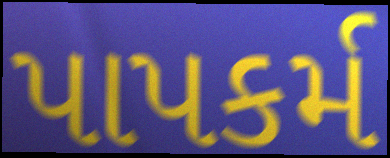
પાપકર્મ